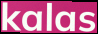
kalas